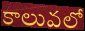
కాలువలో